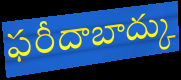
ఫరీదాబాద్కు